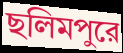
ছলিমপুরে